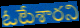
ఓటేశారని